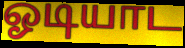
ஓடியாட